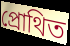
প্রোথিত